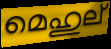
മെഹുല്